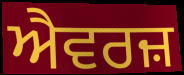
ਐਵਰਜ਼